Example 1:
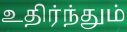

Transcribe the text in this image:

உதிர்ந்தும்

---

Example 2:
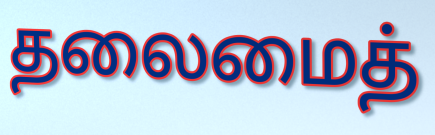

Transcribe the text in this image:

தலைமைத்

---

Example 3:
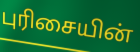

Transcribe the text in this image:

புரிசையின்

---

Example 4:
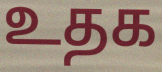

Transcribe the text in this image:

உதக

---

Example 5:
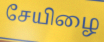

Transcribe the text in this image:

சேயிழை